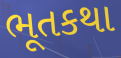
ભૂતકથા